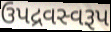
ઉપદ્રવસ્વરૂપ